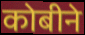
कोबीने